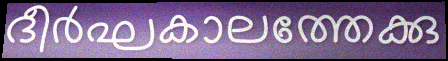
ദീർഘകാലത്തേക്കു